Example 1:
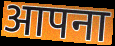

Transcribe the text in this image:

आपना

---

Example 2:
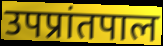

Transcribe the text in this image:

उपप्रांतपाल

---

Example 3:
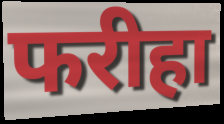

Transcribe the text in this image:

फरीहा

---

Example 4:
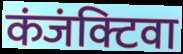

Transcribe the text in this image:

कंजंक्टिवा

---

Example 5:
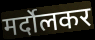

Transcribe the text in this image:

मर्दोलकर